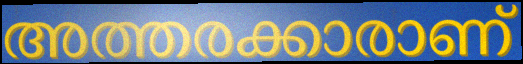
അത്തരക്കാരാണ്